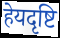
हेयदृष्टि